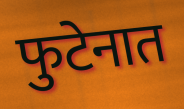
फुटेनात